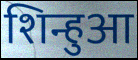
शिन्हुआ